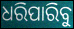
ଧରିପାରିବୁ